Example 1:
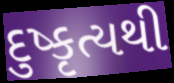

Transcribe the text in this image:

દુષ્કૃત્યથી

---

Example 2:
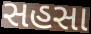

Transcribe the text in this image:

સહસા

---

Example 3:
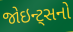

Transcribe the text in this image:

જોઇન્ટ્સનો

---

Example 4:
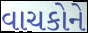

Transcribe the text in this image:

વાચકોને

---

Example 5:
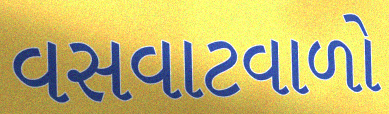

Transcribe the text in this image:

વસવાટવાળો